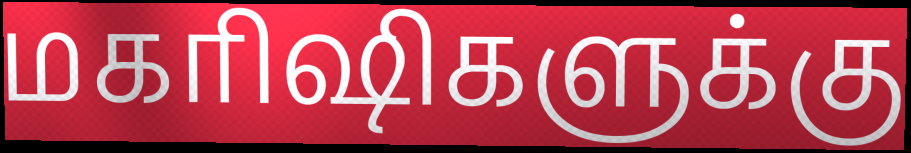
மகரிஷிகளுக்கு